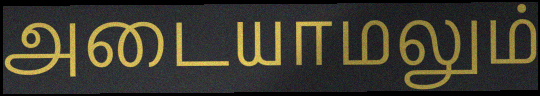
அடையாமலும்